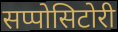
सप्पोसिटोरी